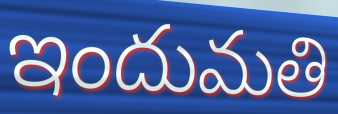
ఇందుమతి